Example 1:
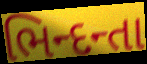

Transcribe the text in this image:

ભિન્દન્તા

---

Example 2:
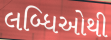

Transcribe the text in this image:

લબ્ધિઓથી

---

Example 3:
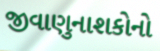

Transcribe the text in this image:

જીવાણુનાશકોનો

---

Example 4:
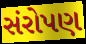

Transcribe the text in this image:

સંરોપણ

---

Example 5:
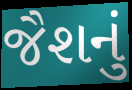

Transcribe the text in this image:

જૈશનું